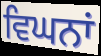
ਵਿਘਨਾਂ